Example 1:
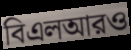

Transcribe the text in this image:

বিএলআরও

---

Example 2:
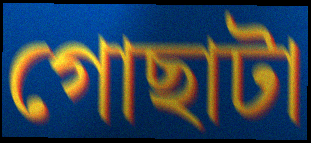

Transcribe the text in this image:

গোছাটা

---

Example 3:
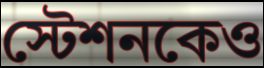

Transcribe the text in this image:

স্টেশনকেও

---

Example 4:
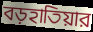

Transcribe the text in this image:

বড়হাতিয়ার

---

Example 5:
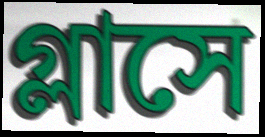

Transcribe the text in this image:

গ্লাসে